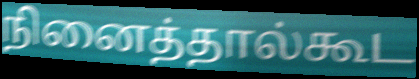
நினைத்தால்கூட